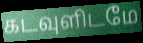
கடவுளிடமே